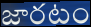
జారటం